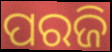
ପରଜି